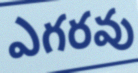
ఎగరవు